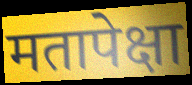
मतापेक्षा